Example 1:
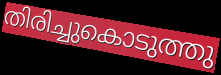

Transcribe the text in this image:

തിരിച്ചുകൊടുത്തു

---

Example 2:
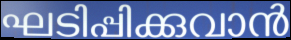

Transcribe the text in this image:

ഘടിപ്പിക്കുവാൻ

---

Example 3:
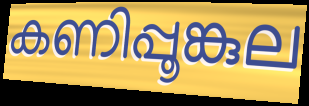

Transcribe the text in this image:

കണിപ്പൂങ്കുല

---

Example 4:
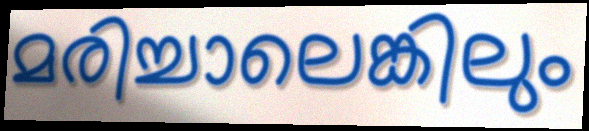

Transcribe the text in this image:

മരിച്ചാലെങ്കിലും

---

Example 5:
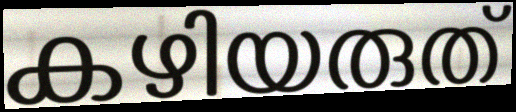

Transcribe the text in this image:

കഴിയരുത്